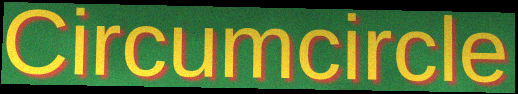
Circumcircle